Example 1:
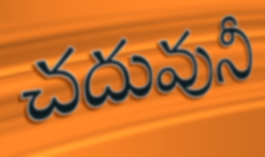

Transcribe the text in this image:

చదువునీ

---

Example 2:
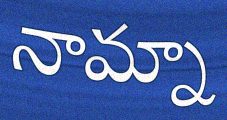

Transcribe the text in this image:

నామ్నా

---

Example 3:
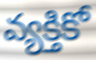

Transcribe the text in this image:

వ్యక్తికో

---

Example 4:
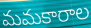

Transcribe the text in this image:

మమకారాల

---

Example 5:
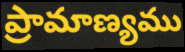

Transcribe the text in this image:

ప్రామాణ్యము